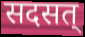
सदसत्